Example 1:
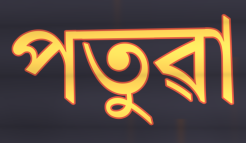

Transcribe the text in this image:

পতুৱা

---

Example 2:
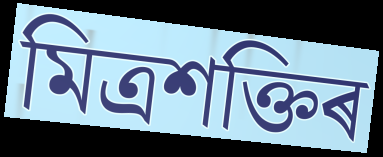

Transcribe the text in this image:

মিত্ৰশক্তিৰ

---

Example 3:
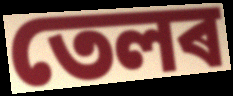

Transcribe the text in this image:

তেলৰ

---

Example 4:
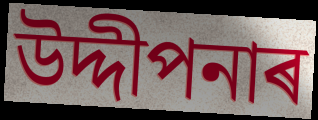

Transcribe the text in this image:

উদ্দীপনাৰ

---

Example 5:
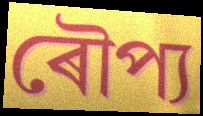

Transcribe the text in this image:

ৰৌপ্য